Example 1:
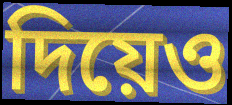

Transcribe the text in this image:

দিয়েও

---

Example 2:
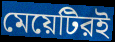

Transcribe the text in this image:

মেয়েটিরই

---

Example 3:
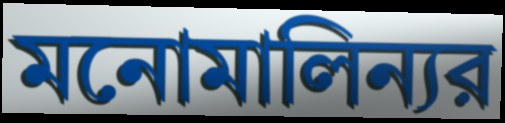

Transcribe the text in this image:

মনোমালিন্যর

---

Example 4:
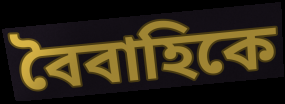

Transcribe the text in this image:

বৈবাহিকে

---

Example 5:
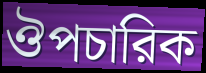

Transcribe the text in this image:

ঔপচারিক